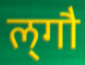
ल्गौ